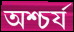
অশ্চর্য